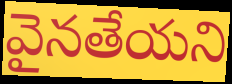
వైనతేయని